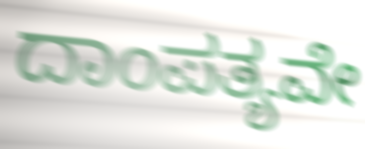
ದಾಂಪತ್ಯವೇ